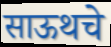
साऊथचे